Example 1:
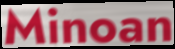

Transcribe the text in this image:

Minoan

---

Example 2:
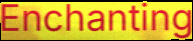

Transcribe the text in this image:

Enchanting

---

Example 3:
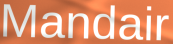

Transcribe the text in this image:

Mandair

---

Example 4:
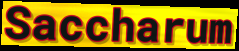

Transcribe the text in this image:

Saccharum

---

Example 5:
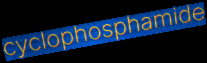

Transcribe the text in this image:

cyclophosphamide